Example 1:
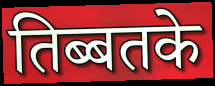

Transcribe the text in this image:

तिब्बतके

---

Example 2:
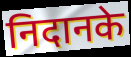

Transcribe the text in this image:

निदानके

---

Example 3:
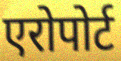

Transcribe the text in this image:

एरोपोर्ट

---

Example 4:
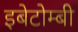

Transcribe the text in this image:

इबेटोम्बी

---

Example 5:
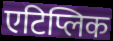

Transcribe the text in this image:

एटिप्लिक